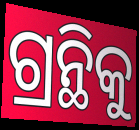
ଗ୍ରନ୍ଥିକୁ